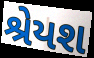
શ્રેયશ